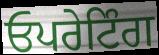
ਓਪਰੇਟਿੰਗ